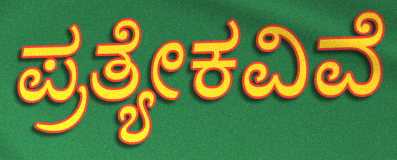
ಪ್ರತ್ಯೇಕವಿವೆ